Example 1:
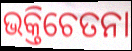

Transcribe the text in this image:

ଭକ୍ତିଚେତନା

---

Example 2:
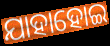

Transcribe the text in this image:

ଯାହାହୋଇ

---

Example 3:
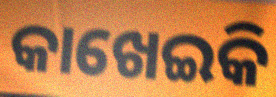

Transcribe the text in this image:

କାଖେଇକି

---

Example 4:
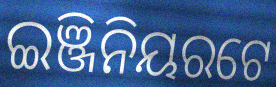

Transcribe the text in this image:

ଇଞ୍ଜିନିୟରଟେ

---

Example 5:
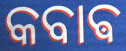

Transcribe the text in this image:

କବାଵ